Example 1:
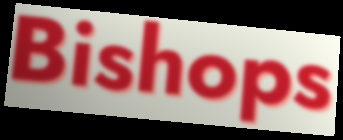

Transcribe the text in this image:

Bishops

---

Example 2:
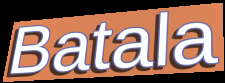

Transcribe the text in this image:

Batala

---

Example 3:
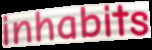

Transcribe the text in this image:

inhabits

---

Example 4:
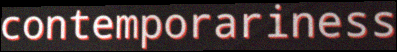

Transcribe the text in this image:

contemporariness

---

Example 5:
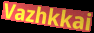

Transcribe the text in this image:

Vazhkkai